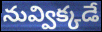
నువ్విక్కడే